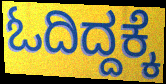
ಓದಿದ್ದಕ್ಕೆ